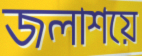
জলাশয়ে